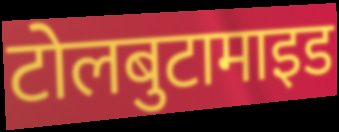
टोलबुटामाइड